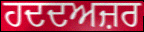
ਹਦਦਅਜ਼ਰ